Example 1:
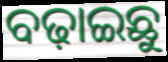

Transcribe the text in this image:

ବଢ଼ାଇଛୁ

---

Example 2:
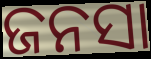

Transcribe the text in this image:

ଜନସା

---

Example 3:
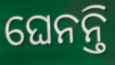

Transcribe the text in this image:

ଘେନନ୍ତି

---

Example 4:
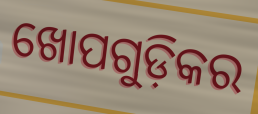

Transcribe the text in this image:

ଖୋପଗୁଡ଼ିକର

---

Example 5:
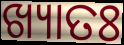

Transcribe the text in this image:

ଖ୍ୟାତଃ